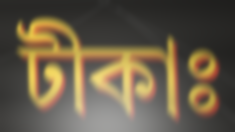
টীকাঃ